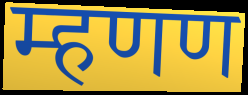
म्हणण